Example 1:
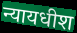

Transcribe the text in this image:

न्यायधीश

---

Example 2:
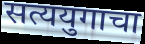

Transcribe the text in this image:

सत्ययुगाचा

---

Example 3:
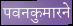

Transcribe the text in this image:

पवनकुमारने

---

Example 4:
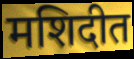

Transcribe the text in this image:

मशिदीत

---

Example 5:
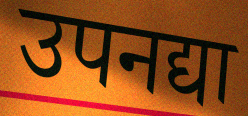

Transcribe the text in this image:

उपनद्या